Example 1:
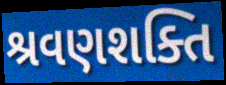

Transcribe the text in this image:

શ્રવણશક્તિ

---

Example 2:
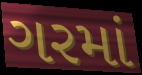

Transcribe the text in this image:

ગરમાં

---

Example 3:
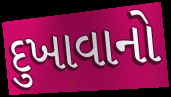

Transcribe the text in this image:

દુખાવાનો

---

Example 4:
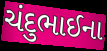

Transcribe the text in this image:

ચંદુભાઈના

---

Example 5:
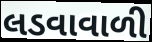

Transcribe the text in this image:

લડવાવાળી